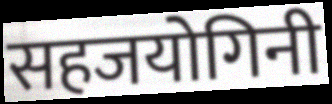
सहजयोगिनी